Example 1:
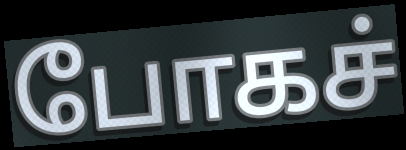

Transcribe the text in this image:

போகச்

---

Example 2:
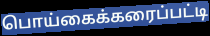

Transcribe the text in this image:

பொய்கைக்கரைப்பட்டி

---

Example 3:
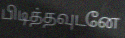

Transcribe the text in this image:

பிடித்தவுடனே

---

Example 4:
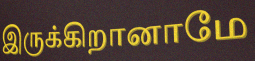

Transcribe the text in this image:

இருக்கிறானாமே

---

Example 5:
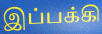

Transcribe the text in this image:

இப்பக்கி